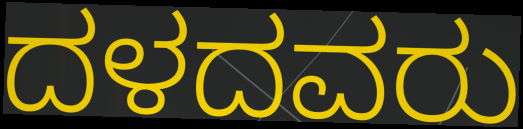
ದಳದವರು